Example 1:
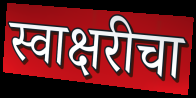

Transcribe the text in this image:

स्वाक्षरीचा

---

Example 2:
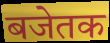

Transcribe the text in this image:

बजेतक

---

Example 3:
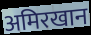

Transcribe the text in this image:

अमिरखान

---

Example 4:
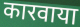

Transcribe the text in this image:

कारवाया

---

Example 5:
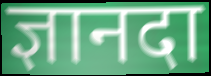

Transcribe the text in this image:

ज्ञानदा